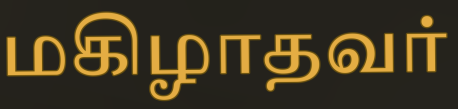
மகிழாதவர்